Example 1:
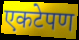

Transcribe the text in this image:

एकटेपण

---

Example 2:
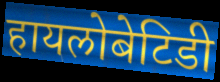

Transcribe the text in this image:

हायलोबेटिडी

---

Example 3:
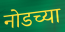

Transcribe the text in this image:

नोडच्या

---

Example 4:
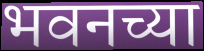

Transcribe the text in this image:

भवनच्या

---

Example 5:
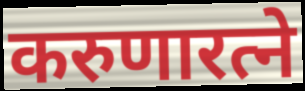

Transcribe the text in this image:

करुणारत्ने